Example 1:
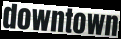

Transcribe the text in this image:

downtown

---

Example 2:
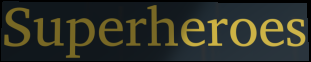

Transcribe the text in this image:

Superheroes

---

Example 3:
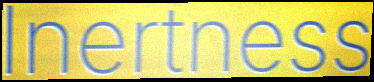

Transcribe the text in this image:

Inertness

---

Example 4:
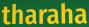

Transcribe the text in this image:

tharaha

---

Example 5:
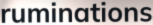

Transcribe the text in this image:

ruminations